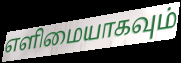
எளிமையாகவும்